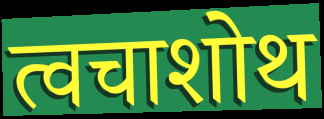
त्वचाशोथ